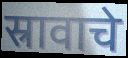
स्रावाचे